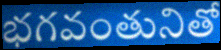
భగవంతునితో